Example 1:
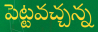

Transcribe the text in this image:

పెట్టవచ్చన్న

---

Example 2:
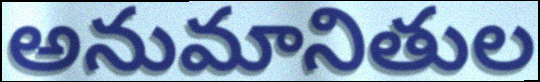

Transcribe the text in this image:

అనుమానితుల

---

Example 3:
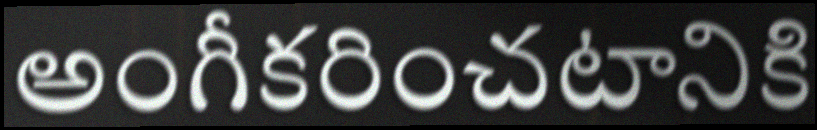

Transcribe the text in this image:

అంగీకరించటానికి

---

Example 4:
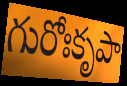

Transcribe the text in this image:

గురోఃకృపా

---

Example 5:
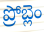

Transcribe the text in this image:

ప్రోబ్లెం